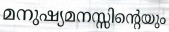
മനുഷ്യമനസ്സിന്റെയും